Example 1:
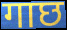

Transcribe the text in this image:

गाछ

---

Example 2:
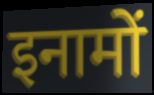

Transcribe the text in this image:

इनामों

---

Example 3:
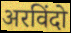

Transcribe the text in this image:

अरविंदो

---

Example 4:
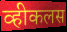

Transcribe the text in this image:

व्हीकलस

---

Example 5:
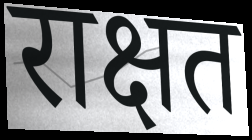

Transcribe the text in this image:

राक्षत